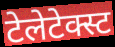
टेलेटेक्स्ट